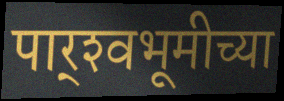
पार्श्वभूमीच्या